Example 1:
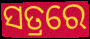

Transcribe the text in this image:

ସତ୍ରରେ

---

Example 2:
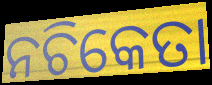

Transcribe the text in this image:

ନଚିକେତା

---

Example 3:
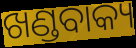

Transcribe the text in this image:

ଖଣ୍ଡବାକ୍ୟ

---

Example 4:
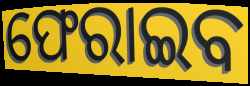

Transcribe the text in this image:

ଫେରାଇବ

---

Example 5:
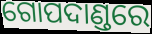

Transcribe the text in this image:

ଗୋପଦାଣ୍ଡରେ